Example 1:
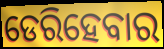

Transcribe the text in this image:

ଡେରିହେବାର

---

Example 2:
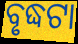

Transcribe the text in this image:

ବୃଦ୍ଧଟା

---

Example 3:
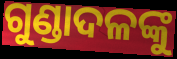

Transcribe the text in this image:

ଗୁଣ୍ଡାଦଳଙ୍କୁ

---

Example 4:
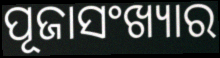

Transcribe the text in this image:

ପୂଜାସଂଖ୍ୟାର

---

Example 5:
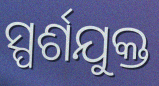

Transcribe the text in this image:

ସ୍ପର୍ଶଯୁକ୍ତ